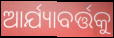
ଆର୍ଯ୍ୟାବର୍ତ୍ତକୁ